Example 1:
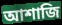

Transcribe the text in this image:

আশাজি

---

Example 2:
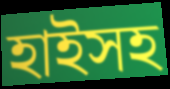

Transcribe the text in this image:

হাইসহ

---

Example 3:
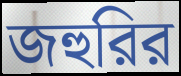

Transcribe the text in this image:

জহুরির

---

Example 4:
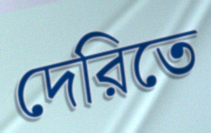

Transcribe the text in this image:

দেরিতে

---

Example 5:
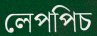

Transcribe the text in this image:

লেপপিচ